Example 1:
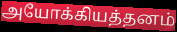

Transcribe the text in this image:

அயோக்கியத்தனம்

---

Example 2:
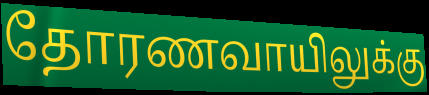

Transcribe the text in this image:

தோரணவாயிலுக்கு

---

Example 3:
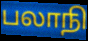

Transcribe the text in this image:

பலாநி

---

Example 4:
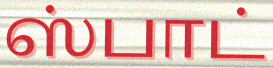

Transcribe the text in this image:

ஸ்பாட்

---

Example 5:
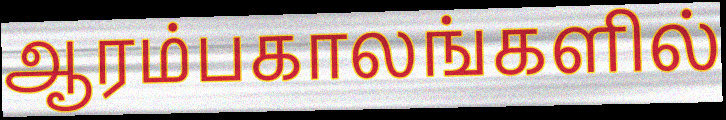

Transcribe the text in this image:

ஆரம்பகாலங்களில்